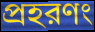
প্রহরণং